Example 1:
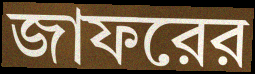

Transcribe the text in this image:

জাফরের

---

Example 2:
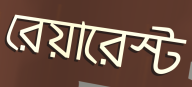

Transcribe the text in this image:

রেয়ারেস্ট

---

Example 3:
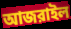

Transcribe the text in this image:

আজরাইল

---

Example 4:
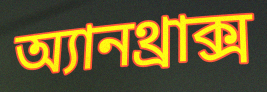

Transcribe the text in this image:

অ্যানথ্রাক্স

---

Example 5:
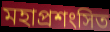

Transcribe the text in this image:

মহাপ্রশংসিত